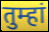
तुम्हां